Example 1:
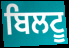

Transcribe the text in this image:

ਬਿਲਟੂ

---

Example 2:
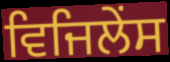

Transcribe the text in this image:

ਵਿਜਿਲੇਂਸ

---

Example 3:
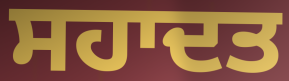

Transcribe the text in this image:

ਸਹਾਦਤ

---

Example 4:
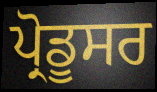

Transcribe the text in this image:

ਪ੍ਰੋਡੂਸਰ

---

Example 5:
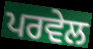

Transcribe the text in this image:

ਪਰਵੇਲ